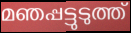
മഞപ്പട്ടുടുത്ത്